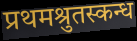
प्रथमश्रुतस्कन्ध